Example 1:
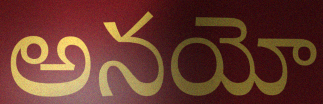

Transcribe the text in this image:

అనయో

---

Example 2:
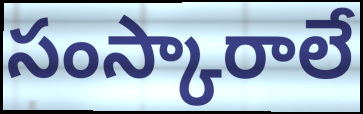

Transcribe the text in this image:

సంస్కారాలే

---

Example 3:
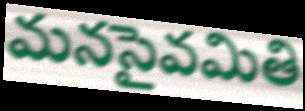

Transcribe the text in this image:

మనసైవమితి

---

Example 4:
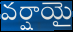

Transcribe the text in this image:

వర్షాయై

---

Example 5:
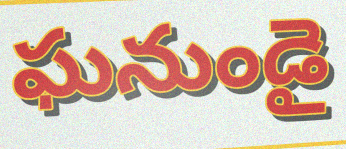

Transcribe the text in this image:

ఘనుండై